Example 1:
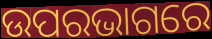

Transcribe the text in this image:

ଉପରଭାଗରେ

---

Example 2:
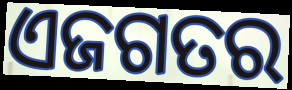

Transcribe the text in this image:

ଏଜଗତର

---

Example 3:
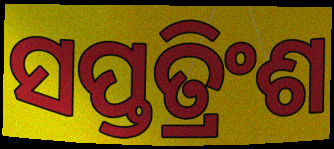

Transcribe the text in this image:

ସପ୍ତତ୍ରିଂଶ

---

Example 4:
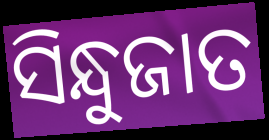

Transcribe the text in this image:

ସିନ୍ଧୁଜାତ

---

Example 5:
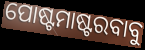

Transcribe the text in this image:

ପୋଷ୍ଟମାଷ୍ଟରବାବୁ